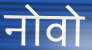
नोवो